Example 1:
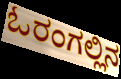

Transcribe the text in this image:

ಓರಂಗಲ್ಲಿನ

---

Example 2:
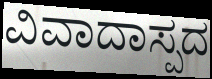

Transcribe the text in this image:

ವಿವಾದಾಸ್ಪದ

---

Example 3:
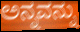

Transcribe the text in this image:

ಅನ್ನವನ್ನು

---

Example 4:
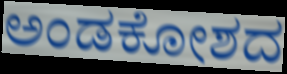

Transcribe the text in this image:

ಅಂಡಕೋಶದ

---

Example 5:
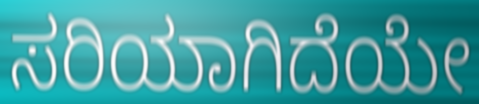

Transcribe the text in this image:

ಸರಿಯಾಗಿದೆಯೇ